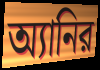
অ্যানির